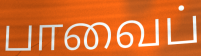
பாவைப்